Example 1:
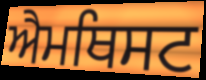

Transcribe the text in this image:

ਐਮਥਿਸਟ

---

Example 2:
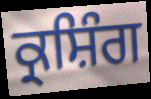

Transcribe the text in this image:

ਕ੍ਰਸ਼ਿੰਗ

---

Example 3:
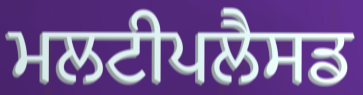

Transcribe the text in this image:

ਮਲਟੀਪਲੈਸਡ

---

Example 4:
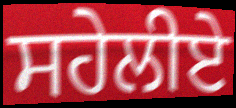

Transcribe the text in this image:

ਸਹੇਲੀਏ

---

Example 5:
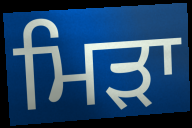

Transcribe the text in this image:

ਮਿੜਾ